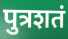
पुत्रशतं